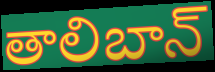
తాలిబాన్